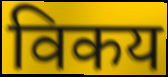
विकय